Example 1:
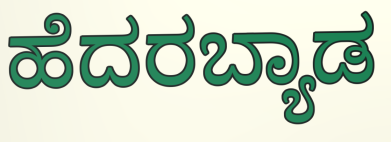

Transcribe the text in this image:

ಹೆದರಬ್ಯಾಡ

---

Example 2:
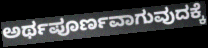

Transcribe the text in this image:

ಅರ್ಥಪೂರ್ಣವಾಗುವುದಕ್ಕೆ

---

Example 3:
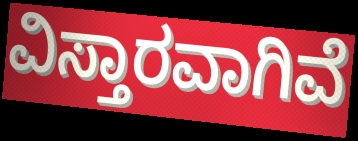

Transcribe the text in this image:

ವಿಸ್ತಾರವಾಗಿವೆ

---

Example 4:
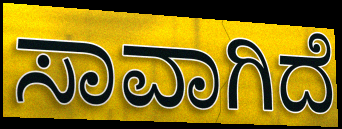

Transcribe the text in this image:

ಸಾವಾಗಿದೆ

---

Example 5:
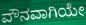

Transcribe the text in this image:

ವೌನವಾಗಿಯೇ